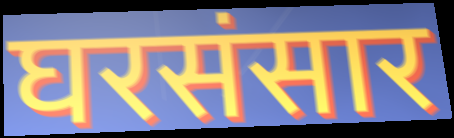
घरसंसार